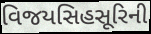
વિજયસિહસૂરિની